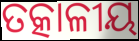
ତତ୍କାଳୀୟ